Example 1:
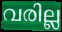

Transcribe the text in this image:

വരില്ല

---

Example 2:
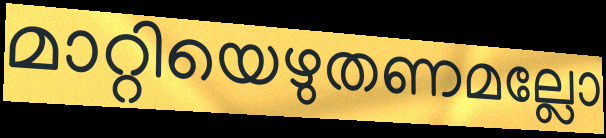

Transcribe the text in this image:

മാറ്റിയെഴുതണമല്ലോ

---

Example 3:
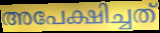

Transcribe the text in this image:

അപേക്ഷിച്ചത്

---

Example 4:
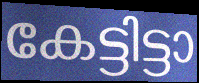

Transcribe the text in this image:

കേട്ടിട്ടാ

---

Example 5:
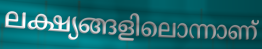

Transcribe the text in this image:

ലക്ഷ്യങ്ങളിലൊന്നാണ്